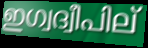
ഇഗ്വദ്വീപില്